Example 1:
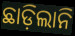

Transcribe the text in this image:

ଛାଡ଼ିଲାନି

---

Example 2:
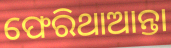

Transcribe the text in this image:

ଫେରିଥାଆନ୍ତା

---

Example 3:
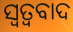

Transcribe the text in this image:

ସ୍ୱତ୍ୱବାଦ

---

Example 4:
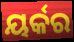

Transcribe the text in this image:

ୟର୍କର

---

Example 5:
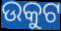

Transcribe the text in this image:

ଉକୁଟ